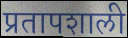
प्रतापशाली